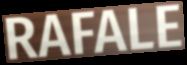
RAFALE